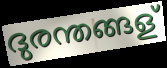
ദുരന്തങ്ങള്